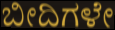
ಬೀದಿಗಳೇ